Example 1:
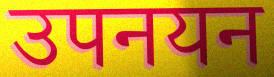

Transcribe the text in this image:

उपनयन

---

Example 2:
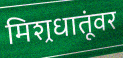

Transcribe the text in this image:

मिश्रधातूंवर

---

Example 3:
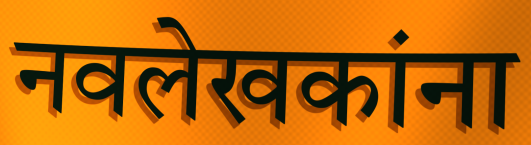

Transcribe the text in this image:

नवलेखकांना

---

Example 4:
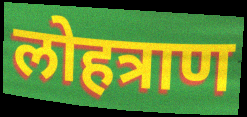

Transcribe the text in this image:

लोहत्राण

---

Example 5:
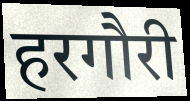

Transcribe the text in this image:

हरगौरी